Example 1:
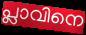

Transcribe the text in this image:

പ്ലാവിനെ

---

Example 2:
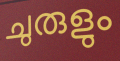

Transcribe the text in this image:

ചുരുളും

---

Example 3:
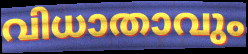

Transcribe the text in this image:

വിധാതാവും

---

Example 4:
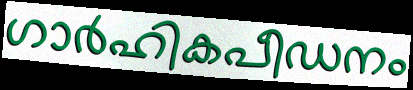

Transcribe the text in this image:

ഗാർഹികപീഡനം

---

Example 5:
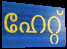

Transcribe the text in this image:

ഹേറ്റ്